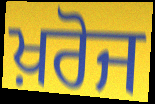
ਖ਼ਰੋਜ